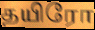
தயிரோ